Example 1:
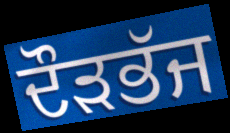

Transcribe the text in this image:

ਦੌੜਭੱਜ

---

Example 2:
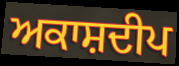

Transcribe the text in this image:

ਅਕਾਸ਼ਦੀਪ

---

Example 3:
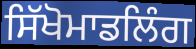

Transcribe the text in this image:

ਸਿੱਖੋਮਾਡਲਿੰਗ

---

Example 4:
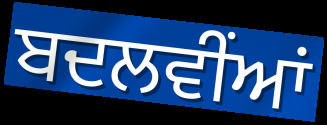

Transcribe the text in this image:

ਬਦਲਵੀਂਆਂ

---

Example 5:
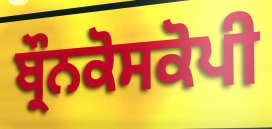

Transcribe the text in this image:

ਬ੍ਰੌਨਕੋਸਕੋਪੀ